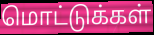
மொட்டுக்கள்